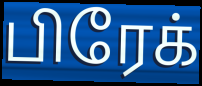
பிரேக்